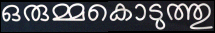
ഒരുമ്മകൊടുത്തു